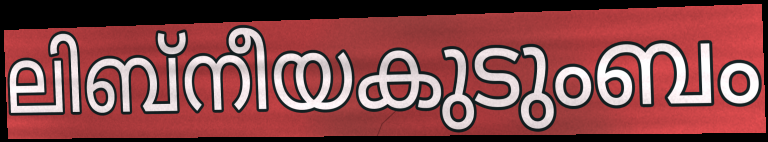
ലിബ്നീയകുടുംബം